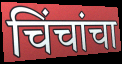
चिंचांचा